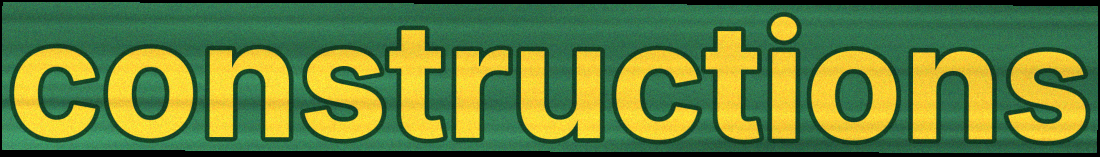
constructions